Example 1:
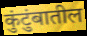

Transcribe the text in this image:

कुंटुंबातील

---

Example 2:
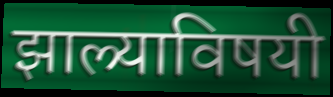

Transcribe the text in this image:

झाल्याविषयी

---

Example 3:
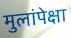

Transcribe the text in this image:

मुलांपेक्षा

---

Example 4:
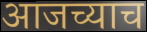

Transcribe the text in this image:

आजच्याच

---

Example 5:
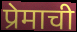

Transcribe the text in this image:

प्रेमाची